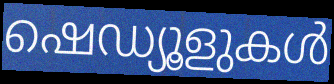
ഷെഡ്യൂളുകൾ